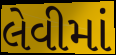
લેવીમાં